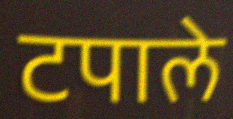
टपाले